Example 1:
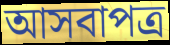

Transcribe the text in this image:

আসবাপত্র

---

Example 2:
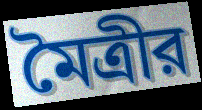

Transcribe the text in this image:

মৈত্রীর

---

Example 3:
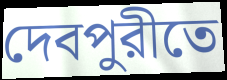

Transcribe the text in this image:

দেবপুরীতে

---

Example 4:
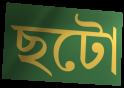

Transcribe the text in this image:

ছটো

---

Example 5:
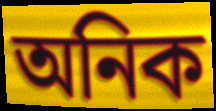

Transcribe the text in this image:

অনিক